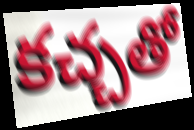
కచ్చతో